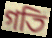
গতি